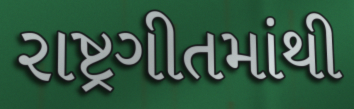
રાષ્ટ્રગીતમાંથી